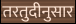
तरतुदीनुसार